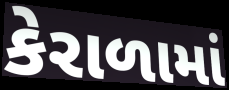
કેરાળામાં